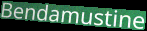
Bendamustine